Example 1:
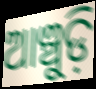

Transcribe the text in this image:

ଆଞ୍ଚୁଡ଼ି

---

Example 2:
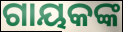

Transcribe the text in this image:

ଗାୟକଙ୍କ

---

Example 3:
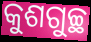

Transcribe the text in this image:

କୁଶଗୁଚ୍ଛ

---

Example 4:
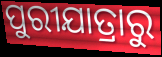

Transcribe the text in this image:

ପୁରୀଯାତ୍ରାରୁ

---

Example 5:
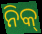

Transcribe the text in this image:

ନିକ୍